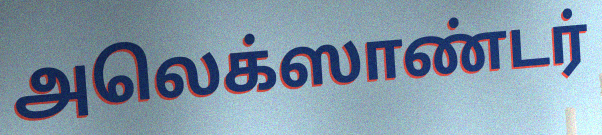
அலெக்ஸாண்டர்